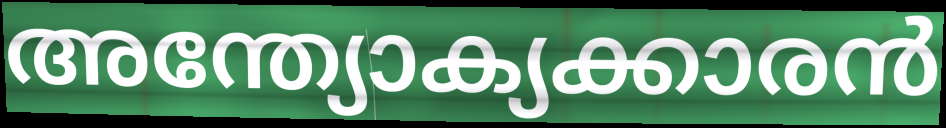
അന്ത്യോക്യക്കാരൻ